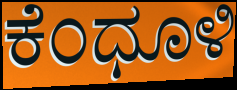
ಕೆಂಧೂಳಿ